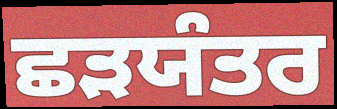
ਛੜਯੰਤਰ